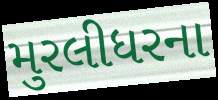
મુરલીધરના